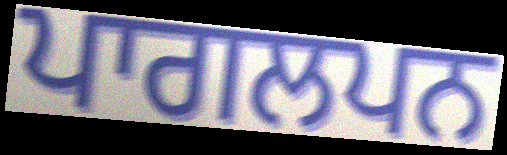
ਪਾਗਲਪਨ